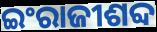
ଇଂରାଜୀଶବ୍ଦ